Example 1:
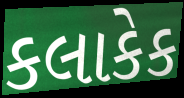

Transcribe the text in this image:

કલાકેક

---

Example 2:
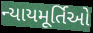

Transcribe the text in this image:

ન્યાયમૂર્તિઓ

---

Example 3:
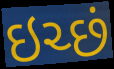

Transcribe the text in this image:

ઇચ્છં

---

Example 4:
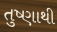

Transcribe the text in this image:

તુષ્ણાથી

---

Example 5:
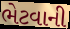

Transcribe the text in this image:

ભેટવાની